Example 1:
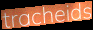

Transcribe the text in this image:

tracheids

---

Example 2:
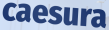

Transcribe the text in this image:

caesura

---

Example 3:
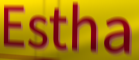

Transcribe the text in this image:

Estha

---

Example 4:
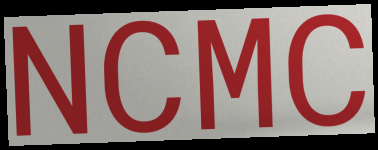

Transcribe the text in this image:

NCMC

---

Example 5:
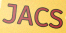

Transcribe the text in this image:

JACS